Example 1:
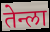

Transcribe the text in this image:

तेन्ला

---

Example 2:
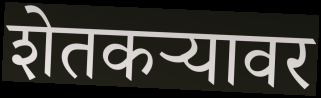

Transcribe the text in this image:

शेतकऱ्यावर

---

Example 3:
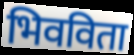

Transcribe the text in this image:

भिवविता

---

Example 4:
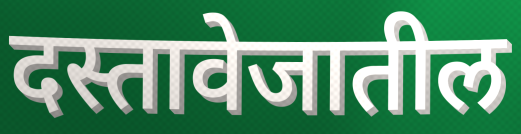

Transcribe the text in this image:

दस्तावेजातील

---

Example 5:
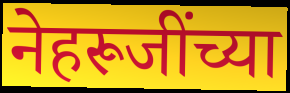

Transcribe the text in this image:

नेहरूजींच्या